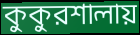
কুকুরশালায়